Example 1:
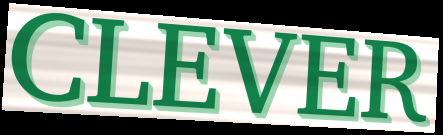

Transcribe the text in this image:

CLEVER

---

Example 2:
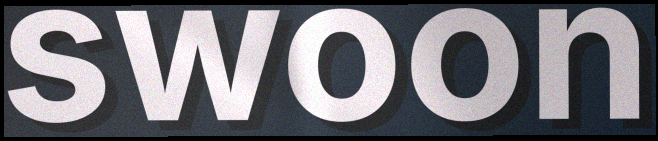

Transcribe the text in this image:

swoon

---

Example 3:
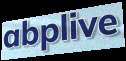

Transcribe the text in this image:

abplive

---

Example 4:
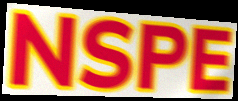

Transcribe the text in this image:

NSPE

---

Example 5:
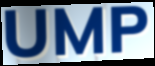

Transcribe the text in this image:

UMP